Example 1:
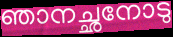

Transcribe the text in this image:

ഞാനച്ഛനോടു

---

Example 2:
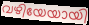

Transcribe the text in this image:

വഴിയേയായി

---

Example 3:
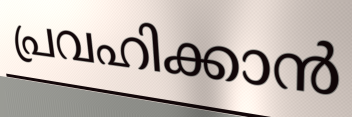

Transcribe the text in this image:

പ്രവഹിക്കാൻ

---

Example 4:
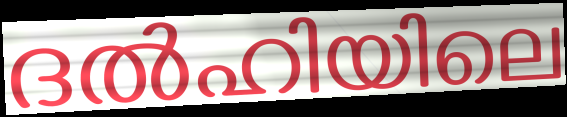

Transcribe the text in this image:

ദൽഹിയിലെ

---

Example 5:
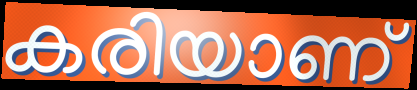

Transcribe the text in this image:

കരിയാണ്